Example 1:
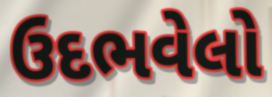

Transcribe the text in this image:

ઉદભવેલો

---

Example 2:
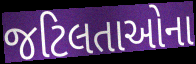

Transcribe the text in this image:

જટિલતાઓના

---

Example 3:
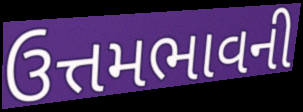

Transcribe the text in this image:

ઉત્તમભાવની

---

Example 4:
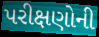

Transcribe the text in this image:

પરીક્ષણોની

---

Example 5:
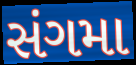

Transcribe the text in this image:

સંગમા